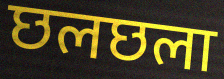
छलछला